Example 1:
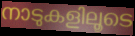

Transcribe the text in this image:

നാടുകളിലൂടെ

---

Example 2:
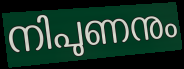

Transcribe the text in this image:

നിപുണനും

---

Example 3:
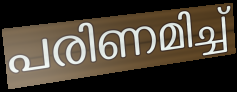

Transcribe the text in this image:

പരിണമിച്ച്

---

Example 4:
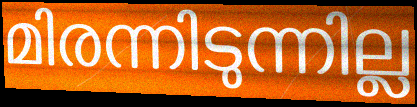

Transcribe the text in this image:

മിരന്നിടുന്നില്ല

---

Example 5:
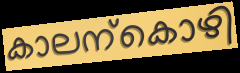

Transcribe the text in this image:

കാലന്കൊഴി